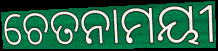
ଚେତନାମୟୀ